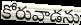
కోరువాడను